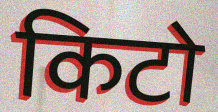
किटो